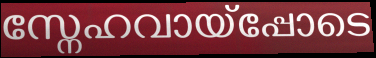
സ്നേഹവായ്പ്പോടെ